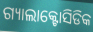
ଗ୍ୟାଲାକ୍ଟୋସିଡିକ